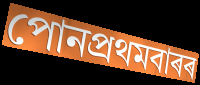
পোনপ্ৰথমবাৰৰ